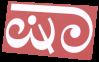
ಷಾ